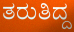
ತರುತಿದ್ದ